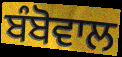
ਬੰਬੋਵਾਲ